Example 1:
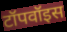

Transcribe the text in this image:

टॉपवॉइस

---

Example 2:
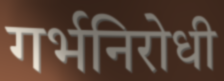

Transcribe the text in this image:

गर्भनिरोधी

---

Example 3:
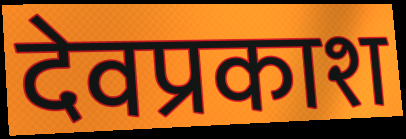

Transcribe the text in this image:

देवप्रकाश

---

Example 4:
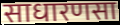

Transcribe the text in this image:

साधारणसा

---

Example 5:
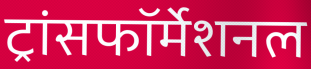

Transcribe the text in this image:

ट्रांसफॉर्मेशनल